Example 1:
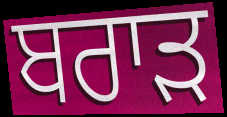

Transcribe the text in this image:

ਬਰਾੜ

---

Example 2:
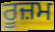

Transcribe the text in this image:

ਰੂਜ਼ਮ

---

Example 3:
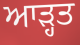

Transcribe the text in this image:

ਆੜ੍ਹਤ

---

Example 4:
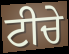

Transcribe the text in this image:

ਟੀਚੇ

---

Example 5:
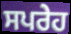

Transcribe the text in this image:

ਸਪਰੇਹ